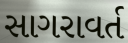
સાગરાવર્ત